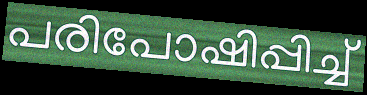
പരിപോഷിപ്പിച്ച്